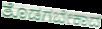
ತೊಡಗಬೇಕಾದ